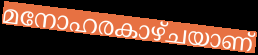
മനോഹരകാഴ്ചയാണ്